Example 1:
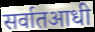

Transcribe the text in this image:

सर्वातआधी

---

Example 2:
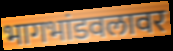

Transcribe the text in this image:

भागभांडवलावर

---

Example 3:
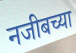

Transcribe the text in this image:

नजीबच्या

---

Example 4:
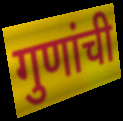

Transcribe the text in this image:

गुणांची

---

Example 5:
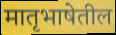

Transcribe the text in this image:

मातृभाषेतील